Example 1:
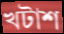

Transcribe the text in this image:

খটাশ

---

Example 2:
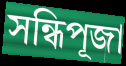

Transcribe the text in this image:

সন্ধিপূজা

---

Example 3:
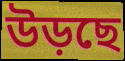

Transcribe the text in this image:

উড়ছে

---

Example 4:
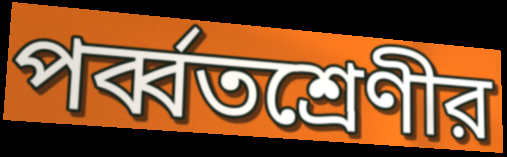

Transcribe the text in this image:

পর্ব্বতশ্রেণীর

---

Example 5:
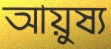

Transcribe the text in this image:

আয়ুষ্য